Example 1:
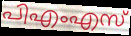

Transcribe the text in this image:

പിഎംഎസ്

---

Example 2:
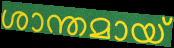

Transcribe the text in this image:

ശാന്തമായ്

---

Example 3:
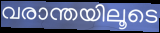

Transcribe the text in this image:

വരാന്തയിലൂടെ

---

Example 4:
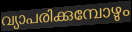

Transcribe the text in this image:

വ്യാപരിക്കുമ്പോഴും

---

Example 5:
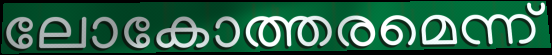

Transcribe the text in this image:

ലോകോത്തരമെന്ന്